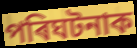
পৰিঘটনাক